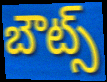
బౌట్స్